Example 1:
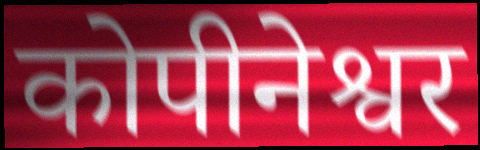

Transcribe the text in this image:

कोपीनेश्वर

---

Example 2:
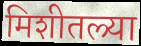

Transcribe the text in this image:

मिशीतल्या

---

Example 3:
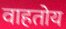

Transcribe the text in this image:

वाहतोय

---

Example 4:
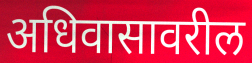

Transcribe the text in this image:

अधिवासावरील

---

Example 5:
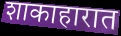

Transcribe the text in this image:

शाकाहारात